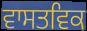
ਵਾਸਤਵਿਕ